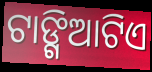
ଟାଙ୍ଗିଆଟିଏ